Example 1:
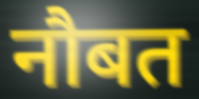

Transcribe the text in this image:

नौबत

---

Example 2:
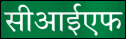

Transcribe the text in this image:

सीआईएफ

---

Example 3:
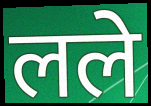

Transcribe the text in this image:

लले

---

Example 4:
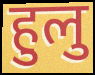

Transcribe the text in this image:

हुलु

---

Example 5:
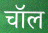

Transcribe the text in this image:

चॉल